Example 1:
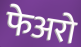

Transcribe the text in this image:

फेअरो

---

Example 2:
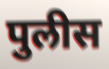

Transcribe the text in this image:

पुलीस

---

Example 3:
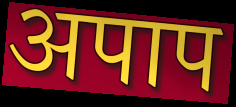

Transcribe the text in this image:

अपाप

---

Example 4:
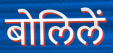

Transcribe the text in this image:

बोलिलें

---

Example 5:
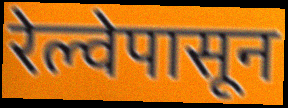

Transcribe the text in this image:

रेल्वेपासून